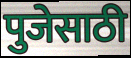
पुजेसाठी